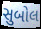
સુબોલ